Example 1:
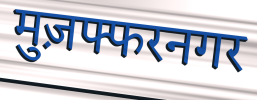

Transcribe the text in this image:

मुज़फ्फरनगर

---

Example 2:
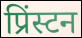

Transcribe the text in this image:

प्रिंस्टन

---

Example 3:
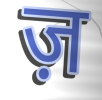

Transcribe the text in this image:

ज़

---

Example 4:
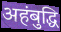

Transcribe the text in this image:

अहंबुद्धि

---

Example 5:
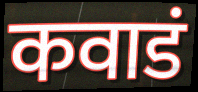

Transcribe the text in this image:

कवाडं